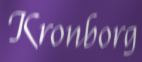
Kronborg